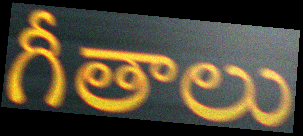
గీతాలు